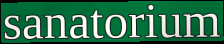
sanatorium